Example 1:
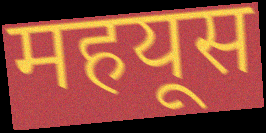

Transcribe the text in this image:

महयूस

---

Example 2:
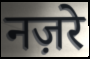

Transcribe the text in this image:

नज़रे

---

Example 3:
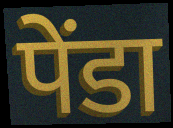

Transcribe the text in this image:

पेंडा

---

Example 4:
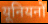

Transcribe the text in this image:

यूनियनों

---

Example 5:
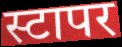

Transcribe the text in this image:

स्टापर